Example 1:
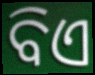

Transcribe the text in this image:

ବିଏ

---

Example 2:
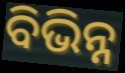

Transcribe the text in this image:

ବିଭିନ୍ନ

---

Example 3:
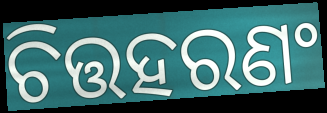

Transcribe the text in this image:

ଚିତ୍ତହରଣଂ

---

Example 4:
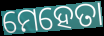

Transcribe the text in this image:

ମେହେତା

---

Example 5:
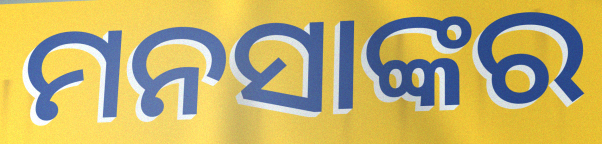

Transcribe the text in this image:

ମନସାଙ୍କର